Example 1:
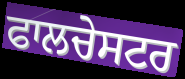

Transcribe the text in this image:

ਫਾਲਚੇਸਟਰ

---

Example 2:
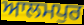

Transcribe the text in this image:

ਆਲਮਪੁਰ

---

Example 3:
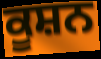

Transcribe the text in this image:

ਕੂਸ਼ਨ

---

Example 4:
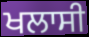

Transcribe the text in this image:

ਖਲਾਸੀ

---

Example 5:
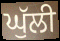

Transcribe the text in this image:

ਘੁੱਲੀ